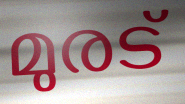
മുരട്